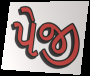
પેજી